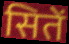
सितें